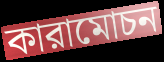
কারামোচন